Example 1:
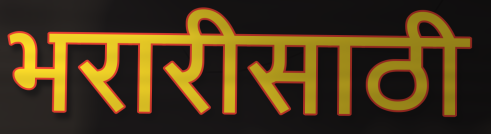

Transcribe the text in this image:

भरारीसाठी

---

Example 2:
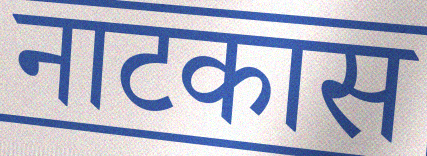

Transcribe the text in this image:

नाटकास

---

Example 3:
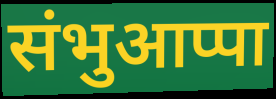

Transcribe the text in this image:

संभुआप्पा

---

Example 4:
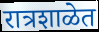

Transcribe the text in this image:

रात्रशाळेत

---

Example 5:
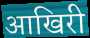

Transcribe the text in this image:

आखिरी